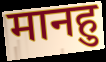
मानहु